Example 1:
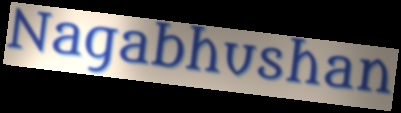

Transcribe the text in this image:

Nagabhushan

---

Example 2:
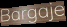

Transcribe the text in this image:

Bargaje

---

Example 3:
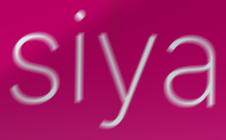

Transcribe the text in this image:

siya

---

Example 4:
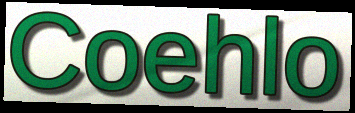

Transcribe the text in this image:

Coehlo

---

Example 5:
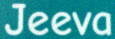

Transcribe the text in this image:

Jeeva